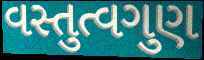
વસ્તુત્વગુણ